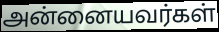
அன்னையவர்கள்